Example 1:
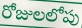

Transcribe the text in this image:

రోజులలోపు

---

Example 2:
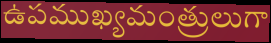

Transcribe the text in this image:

ఉపముఖ్యమంత్రులుగా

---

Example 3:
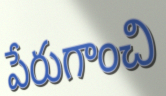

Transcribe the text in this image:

పేరుగాంచి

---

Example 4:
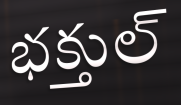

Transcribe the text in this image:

భక్తుల్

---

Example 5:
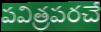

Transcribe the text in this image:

పవిత్రపరచే